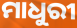
ମାଧୁରୀ